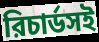
রিচার্ডসই